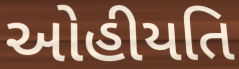
ઓહીયતિ